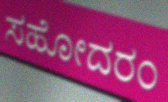
ಸಹೋದರಂ